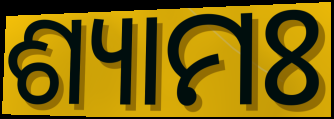
ଶ୍ୟାମଃ